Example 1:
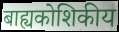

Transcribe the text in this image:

बाह्यकोशिकीय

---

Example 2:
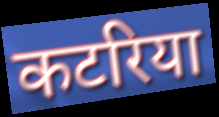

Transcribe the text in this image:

कटरिया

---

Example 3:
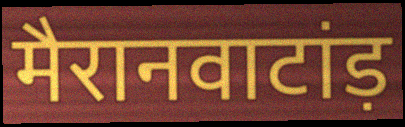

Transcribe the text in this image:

मैरानवाटांड़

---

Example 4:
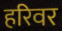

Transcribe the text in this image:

हरिवर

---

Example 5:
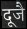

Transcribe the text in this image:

दूजै